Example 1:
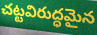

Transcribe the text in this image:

చట్టవిరుద్ధమైన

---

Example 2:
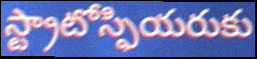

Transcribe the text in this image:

స్ట్రాటోస్ఫియరుకు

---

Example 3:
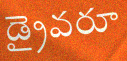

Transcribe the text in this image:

డ్రైవరూ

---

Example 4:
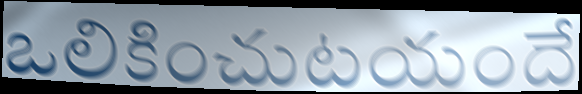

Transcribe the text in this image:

ఒలికించుటయందే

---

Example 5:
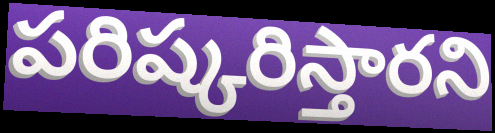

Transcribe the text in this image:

పరిష్కరిస్తారని